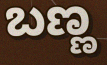
ಬಣ್ಣ